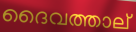
ദൈവത്താല്